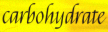
carbohydrate